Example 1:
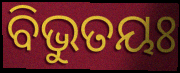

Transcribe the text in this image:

ବିଭୁତୟଃ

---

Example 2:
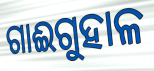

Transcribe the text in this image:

ଗାଈଗୁହାଳ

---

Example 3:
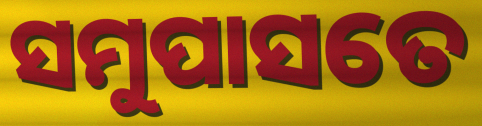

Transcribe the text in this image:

ସମୁପାସତେ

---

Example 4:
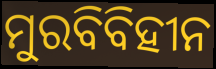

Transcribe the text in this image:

ମୁରବିବିହୀନ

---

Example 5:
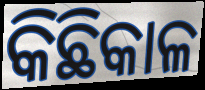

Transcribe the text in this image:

କିଛିକାଳ